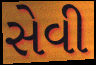
સેવી